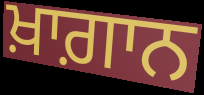
ਖ਼ਾਗ਼ਾਨ